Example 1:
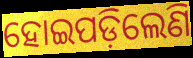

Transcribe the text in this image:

ହୋଇପଡ଼ିଲେଣି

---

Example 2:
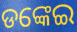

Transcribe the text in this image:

ଡଙ୍କେଇ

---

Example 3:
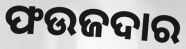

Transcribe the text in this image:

ଫଉଜଦାର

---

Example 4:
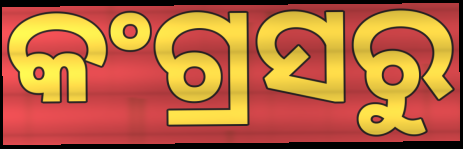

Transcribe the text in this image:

କଂଗ୍ରସରୁ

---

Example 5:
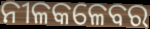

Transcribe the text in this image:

ନୀଳକଳେବର